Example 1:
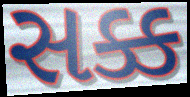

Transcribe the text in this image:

સક્ક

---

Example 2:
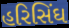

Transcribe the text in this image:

હરિસિંઘ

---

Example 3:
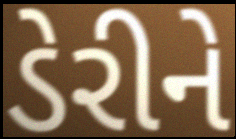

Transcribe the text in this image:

ડેરીને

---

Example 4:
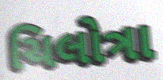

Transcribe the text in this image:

ચિલોત્રા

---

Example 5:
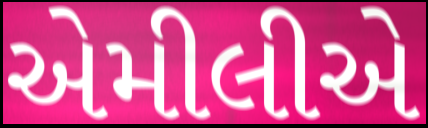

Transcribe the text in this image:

એમીલીએ